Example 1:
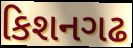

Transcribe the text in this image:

કિશનગઢ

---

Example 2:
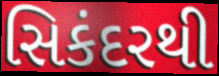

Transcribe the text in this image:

સિકંદરથી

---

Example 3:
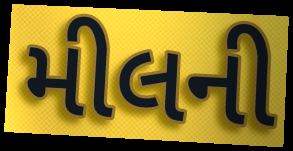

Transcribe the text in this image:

મીલની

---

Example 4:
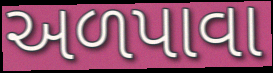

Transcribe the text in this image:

અળપાવા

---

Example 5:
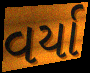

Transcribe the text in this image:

વર્યા